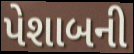
પેશાબની